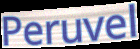
Peruvel